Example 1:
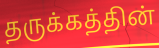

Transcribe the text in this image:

தருக்கத்தின்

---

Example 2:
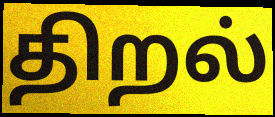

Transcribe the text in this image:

திறல்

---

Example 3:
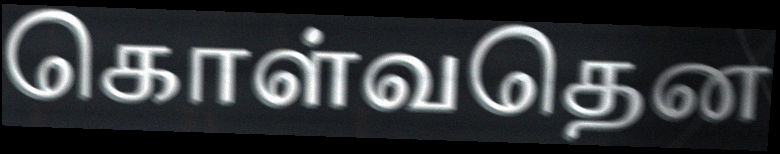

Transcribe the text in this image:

கொள்வதென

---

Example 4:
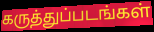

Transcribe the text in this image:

கருத்துப்படங்கள்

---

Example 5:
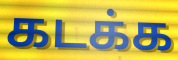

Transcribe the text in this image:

கடக்க